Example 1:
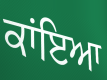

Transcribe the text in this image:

ਕਾਂਇਆ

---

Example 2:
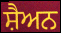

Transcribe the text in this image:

ਸ਼ੈਅਨ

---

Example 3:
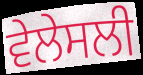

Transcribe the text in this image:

ਵੇਲੇਸਲੀ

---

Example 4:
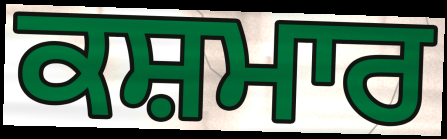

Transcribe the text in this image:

ਕਸ਼ਮਾਰ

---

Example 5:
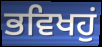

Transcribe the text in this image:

ਭਵਿਖਹੁਂ